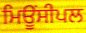
ਮਿਊਂਸੀਪਲ